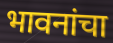
भावनांचा